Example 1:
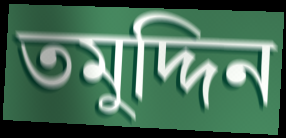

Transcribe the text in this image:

তমুদ্দিন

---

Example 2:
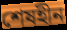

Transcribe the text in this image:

শেষহীন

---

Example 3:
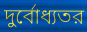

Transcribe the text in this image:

দুর্বোধ্যতর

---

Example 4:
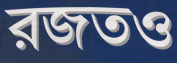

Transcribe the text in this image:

রজতও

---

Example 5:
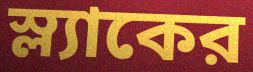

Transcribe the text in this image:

স্ল্যাকের